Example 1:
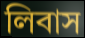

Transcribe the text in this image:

লিবাস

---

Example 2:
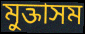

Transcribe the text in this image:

মুক্তাসম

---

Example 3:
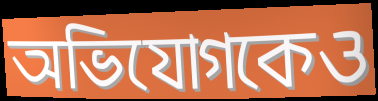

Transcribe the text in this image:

অভিযোগকেও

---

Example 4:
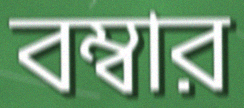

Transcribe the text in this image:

বম্বার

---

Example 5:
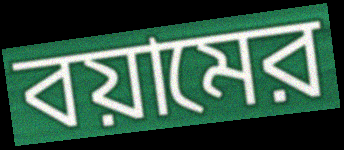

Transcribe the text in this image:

বয়ামের